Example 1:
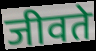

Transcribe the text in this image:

जीवते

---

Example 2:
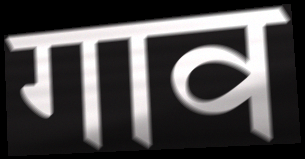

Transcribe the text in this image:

गाव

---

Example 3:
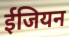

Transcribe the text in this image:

ईजियन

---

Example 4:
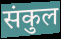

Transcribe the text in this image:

संकुल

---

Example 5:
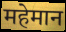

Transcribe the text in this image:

महेमान